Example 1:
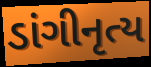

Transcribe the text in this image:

ડાંગીનૃત્ય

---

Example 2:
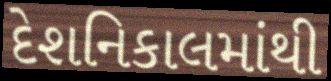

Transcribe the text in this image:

દેશનિકાલમાંથી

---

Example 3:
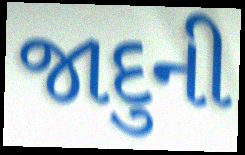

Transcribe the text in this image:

જાદુની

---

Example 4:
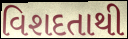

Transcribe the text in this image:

વિશદતાથી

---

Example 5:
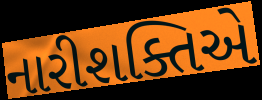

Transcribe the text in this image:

નારીશક્તિએ